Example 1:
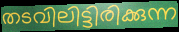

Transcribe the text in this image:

തടവിലിട്ടിരിക്കുന്ന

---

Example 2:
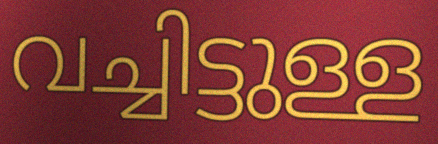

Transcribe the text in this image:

വച്ചിട്ടുള്ള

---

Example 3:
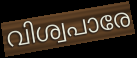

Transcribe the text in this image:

വിശ്വപാരേ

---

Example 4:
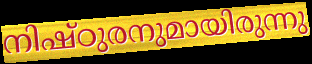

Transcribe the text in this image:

നിഷ്ഠുരനുമായിരുന്നു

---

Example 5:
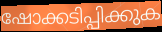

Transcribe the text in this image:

ഷോക്കടിപ്പിക്കുക